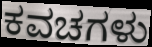
ಕವಚಗಳು